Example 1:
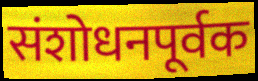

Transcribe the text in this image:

संशोधनपूर्वक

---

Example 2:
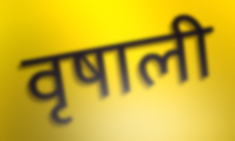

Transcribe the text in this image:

वृषाली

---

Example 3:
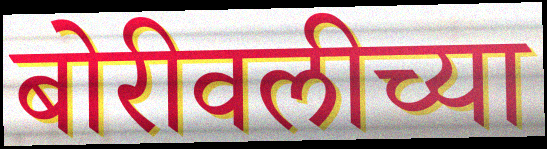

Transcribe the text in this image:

बोरीवलीच्या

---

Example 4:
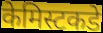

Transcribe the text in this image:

केमिस्टकडे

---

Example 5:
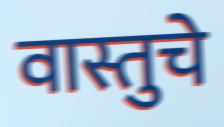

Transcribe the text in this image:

वास्तुचे